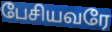
பேசியவரே